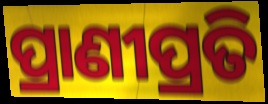
ପ୍ରାଣୀପ୍ରତି